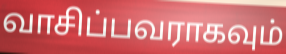
வாசிப்பவராகவும்